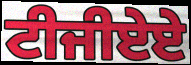
ਟੀਜੀਏਏ